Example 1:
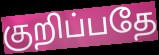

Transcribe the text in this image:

குறிப்பதே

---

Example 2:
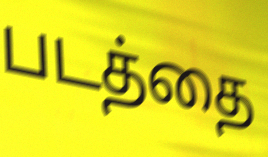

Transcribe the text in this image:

படத்தை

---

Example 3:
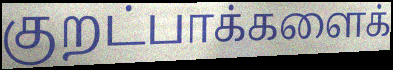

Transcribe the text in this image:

குறட்பாக்களைக்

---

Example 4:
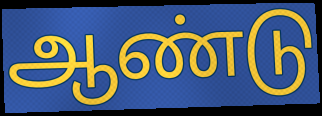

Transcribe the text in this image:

ஆண்டு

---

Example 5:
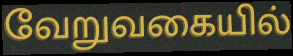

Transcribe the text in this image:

வேறுவகையில்